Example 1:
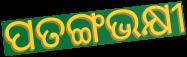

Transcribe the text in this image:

ପତଙ୍ଗଭକ୍ଷୀ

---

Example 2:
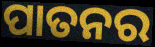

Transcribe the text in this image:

ପାତନର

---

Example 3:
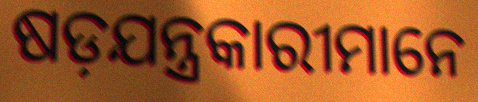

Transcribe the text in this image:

ଷଡ଼ଯନ୍ତ୍ରକାରୀମାନେ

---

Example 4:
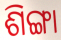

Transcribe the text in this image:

ଶିଙ୍ଗା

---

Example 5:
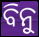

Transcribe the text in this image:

ବିନୁ